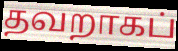
தவறாகப்